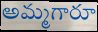
అమ్మగారూ